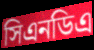
সিএনডিএ